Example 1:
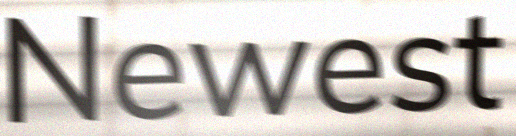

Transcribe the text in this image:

Newest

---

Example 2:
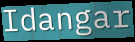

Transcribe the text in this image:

Idangar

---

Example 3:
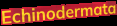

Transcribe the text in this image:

Echinodermata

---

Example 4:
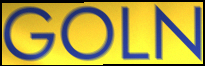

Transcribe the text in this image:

GOLN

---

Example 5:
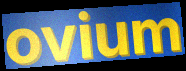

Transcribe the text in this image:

ovium